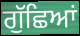
ਗੁੱਛਿਆਂ